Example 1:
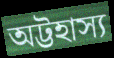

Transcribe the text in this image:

অট্টহাস্য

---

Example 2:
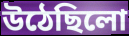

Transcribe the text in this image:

উঠেছিলো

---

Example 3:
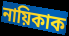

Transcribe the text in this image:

নায়িকাক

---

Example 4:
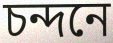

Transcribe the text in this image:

চন্দনে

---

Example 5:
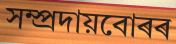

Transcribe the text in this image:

সম্প্ৰদায়বোৰৰ